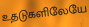
உதடுகளிலேயே